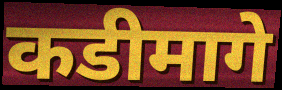
कडीमागे